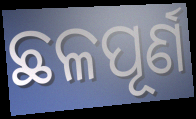
ଛଳପୂର୍ଣ